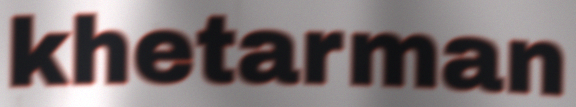
khetarman